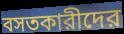
বসতকারীদের